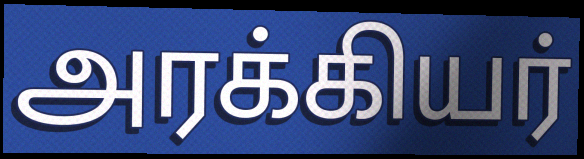
அரக்கியர்